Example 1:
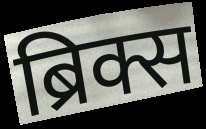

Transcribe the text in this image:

ब्रिक्स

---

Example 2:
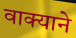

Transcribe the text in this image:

वाक्याने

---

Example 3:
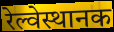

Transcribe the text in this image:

रेल्वेस्थानक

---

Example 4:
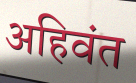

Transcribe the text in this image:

अहिवंत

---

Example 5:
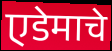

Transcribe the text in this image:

एडेमाचे